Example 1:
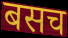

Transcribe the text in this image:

बसच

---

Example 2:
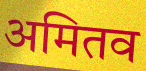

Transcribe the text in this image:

अमितव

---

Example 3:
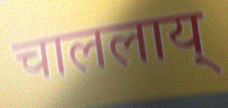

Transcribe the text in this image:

चाललाय्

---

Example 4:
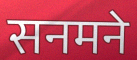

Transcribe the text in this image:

सनमने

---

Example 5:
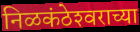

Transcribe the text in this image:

निळकंठेश्वराच्या